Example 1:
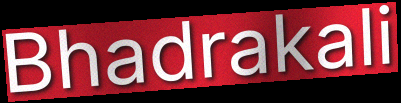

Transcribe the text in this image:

Bhadrakali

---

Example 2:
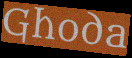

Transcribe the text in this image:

Ghoda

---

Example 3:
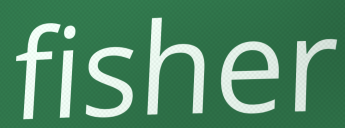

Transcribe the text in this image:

fisher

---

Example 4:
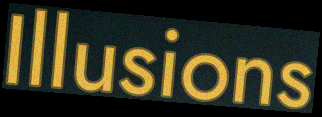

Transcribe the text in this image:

Illusions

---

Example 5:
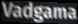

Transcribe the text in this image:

Vadgama